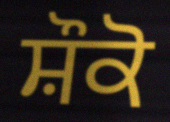
ਸ਼ੌਕੋ